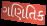
ગણિતિક